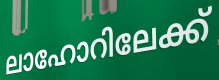
ലാഹോറിലേക്ക്